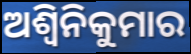
ଅଶ୍ୱିନିକୁମାର